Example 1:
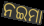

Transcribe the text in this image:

ନଇମା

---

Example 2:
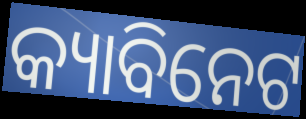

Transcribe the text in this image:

କ୍ୟାବିନେଟ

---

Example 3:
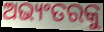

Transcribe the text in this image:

ଅଭ୍ୟଂତରକୁ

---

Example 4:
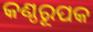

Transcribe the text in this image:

କଣ୍ଠରୂପକ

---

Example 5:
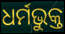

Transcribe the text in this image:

ଧର୍ମଭୁକ୍ତ